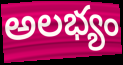
అలభ్యం